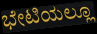
ಭೇಟಿಯಲ್ಲೂ